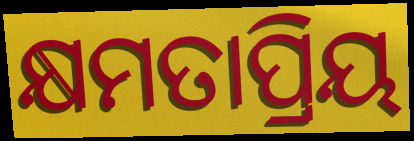
କ୍ଷମତାପ୍ରିୟ